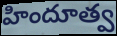
హిందూత్వ